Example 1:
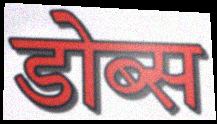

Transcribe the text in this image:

डोब्स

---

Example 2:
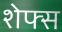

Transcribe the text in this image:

शेफ्स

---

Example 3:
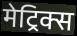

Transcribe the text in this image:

मेट्रिक्स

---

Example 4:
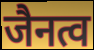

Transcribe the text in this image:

जैनत्व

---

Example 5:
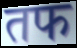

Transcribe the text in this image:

तफ